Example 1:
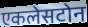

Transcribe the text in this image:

एकलेसटोन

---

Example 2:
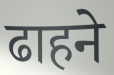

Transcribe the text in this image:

ढाहने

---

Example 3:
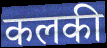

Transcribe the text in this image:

कलकी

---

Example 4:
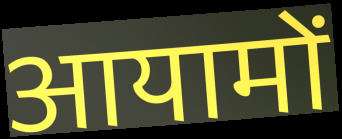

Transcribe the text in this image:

आयामों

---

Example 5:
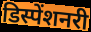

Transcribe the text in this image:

डिस्पेंशनरी